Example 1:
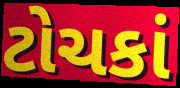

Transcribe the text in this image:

ટોચકાં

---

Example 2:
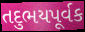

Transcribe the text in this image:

તદુભયપૂર્વક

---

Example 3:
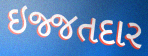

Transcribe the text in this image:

ઇજ્જતદાર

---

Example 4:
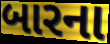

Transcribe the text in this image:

બારના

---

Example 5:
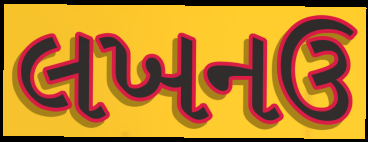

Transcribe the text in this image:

લખનઉ